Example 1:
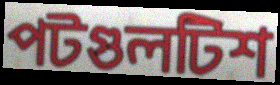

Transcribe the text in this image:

পটগুলটিশ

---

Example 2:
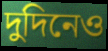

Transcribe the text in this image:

দুদিনেও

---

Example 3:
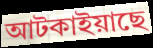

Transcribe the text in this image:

আটকাইয়াছে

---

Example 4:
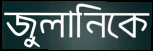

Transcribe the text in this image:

জুলানিকে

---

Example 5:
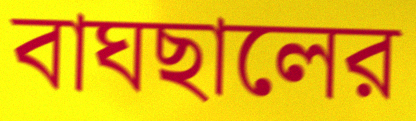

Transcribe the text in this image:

বাঘছালের